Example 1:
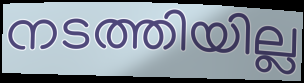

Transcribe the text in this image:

നടത്തിയില്ല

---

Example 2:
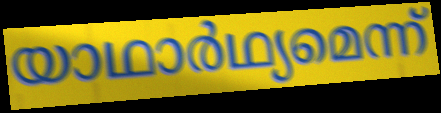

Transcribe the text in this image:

യാഥാർഥ്യമെന്ന്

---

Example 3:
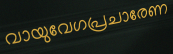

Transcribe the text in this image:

വായുവേഗപ്രചാരേണ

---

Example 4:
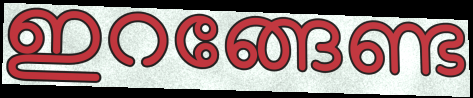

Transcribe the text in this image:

ഇറങ്ങേണ്ട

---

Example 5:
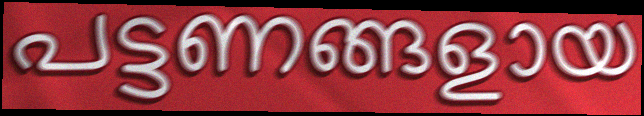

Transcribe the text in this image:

പട്ടണങ്ങളായ